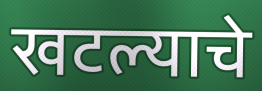
खटल्याचे